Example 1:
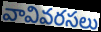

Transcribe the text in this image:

వావివరసలు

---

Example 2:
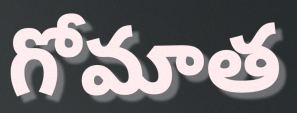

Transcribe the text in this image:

గోమాత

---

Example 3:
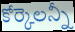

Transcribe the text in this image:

కోర్కెలన్నీ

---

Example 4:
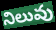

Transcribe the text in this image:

నిలువు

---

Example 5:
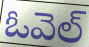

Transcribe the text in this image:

ఓవెల్